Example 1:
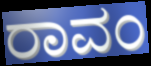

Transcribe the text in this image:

ರಾವಂ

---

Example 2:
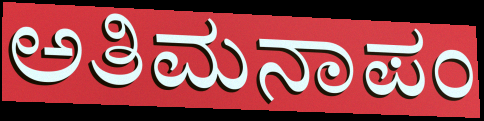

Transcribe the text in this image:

ಅತಿಮನಾಪಂ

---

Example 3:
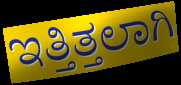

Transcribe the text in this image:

ಇತ್ತಿತ್ತಲಾಗಿ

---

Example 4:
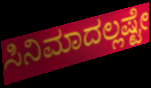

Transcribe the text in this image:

ಸಿನಿಮಾದಲ್ಲಷ್ಟೇ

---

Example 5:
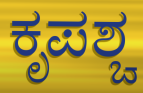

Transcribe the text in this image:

ಕೃಪಶ್ಚ